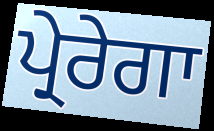
ਪ੍ਰੇਰੇਗਾ